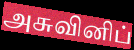
அசுவினிப்